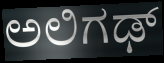
ಅಲಿಗಢ್